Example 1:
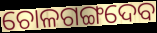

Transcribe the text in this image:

ଚୋଳଗଙ୍ଗଦେବ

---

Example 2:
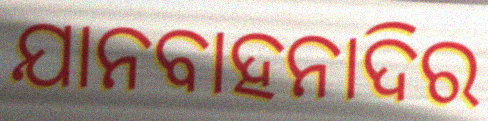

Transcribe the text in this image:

ଯାନବାହନାଦିର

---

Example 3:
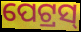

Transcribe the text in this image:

ପେଟ୍ରସ୍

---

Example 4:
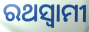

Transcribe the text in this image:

ରଥସ୍ୱାମୀ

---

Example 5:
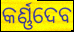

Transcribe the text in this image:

କର୍ଣ୍ଣଦେବ